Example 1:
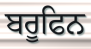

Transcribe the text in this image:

ਬਰੂਫਿਨ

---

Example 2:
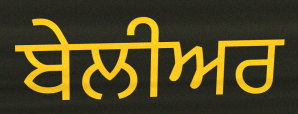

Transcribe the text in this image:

ਬੇਲੀਅਰ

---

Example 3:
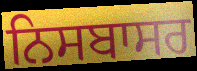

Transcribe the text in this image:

ਨਿਸਬਾਸਰ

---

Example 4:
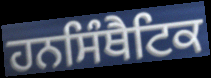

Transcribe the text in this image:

ਹਨਸਿੰਥੈਟਿਕ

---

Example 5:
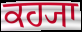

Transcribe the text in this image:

ਕਹ੍ਯਾ